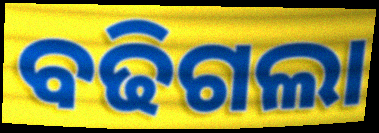
ବଢିଗଲା